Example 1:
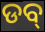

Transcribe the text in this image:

ଡବ୍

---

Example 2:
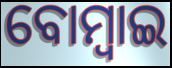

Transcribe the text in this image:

ବୋମ୍ୱାଇ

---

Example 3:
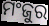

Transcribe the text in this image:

ମଂଜୁର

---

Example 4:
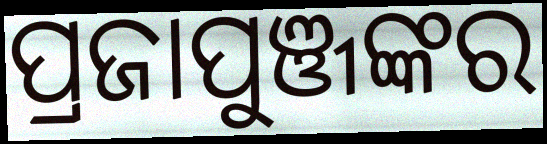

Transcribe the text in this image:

ପ୍ରଜାପୁଞ୍ଜଙ୍କର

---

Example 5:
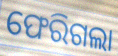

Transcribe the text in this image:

ଫେରିଗଲା